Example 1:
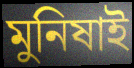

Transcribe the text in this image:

মুনিষাই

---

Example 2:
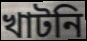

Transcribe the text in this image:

খাটনি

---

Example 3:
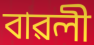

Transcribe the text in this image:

বাৱলী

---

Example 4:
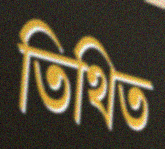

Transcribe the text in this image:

তিথিত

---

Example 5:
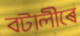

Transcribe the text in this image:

বটালীৰে